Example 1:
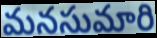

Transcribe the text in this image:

మనసుమారి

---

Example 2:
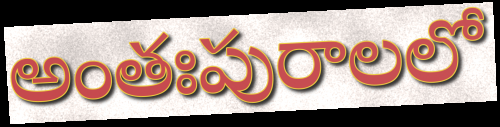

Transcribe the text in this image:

అంతఃపురాలలో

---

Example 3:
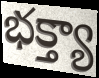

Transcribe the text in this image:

భక్త్యా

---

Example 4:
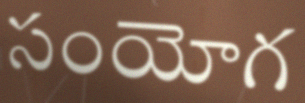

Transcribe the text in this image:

సంయోగ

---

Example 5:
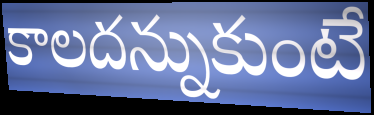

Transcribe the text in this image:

కాలదన్నుకుంటే